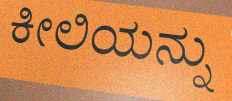
ಕೀಲಿಯನ್ನು